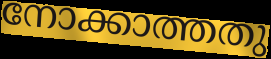
നോക്കാത്തതു